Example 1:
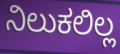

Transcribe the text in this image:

ನಿಲುಕಲಿಲ್ಲ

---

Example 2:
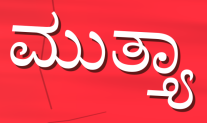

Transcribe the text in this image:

ಮುತ್ತ್ಯಾ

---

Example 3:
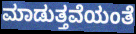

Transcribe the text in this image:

ಮಾಡುತ್ತವೆಯಂತೆ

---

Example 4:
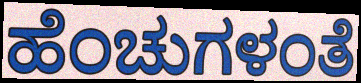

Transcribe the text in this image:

ಹೆಂಚುಗಳಂತೆ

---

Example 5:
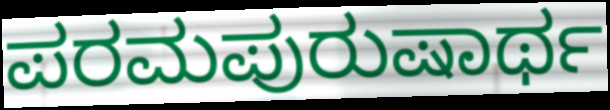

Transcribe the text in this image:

ಪರಮಪುರುಷಾರ್ಥ